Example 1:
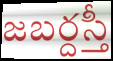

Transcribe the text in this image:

జబర్దస్తీ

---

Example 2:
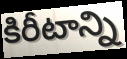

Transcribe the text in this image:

కిరీటాన్ని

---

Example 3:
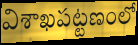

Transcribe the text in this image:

విశాఖపట్టణంలో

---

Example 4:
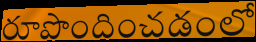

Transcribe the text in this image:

రూపొందించడంలో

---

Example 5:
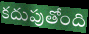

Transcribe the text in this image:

కదుపుతోంది